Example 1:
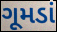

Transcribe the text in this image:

ગૂમડાં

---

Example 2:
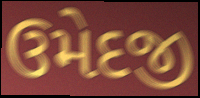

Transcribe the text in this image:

ઉમેદજી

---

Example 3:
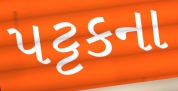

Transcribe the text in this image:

પટ્ટકના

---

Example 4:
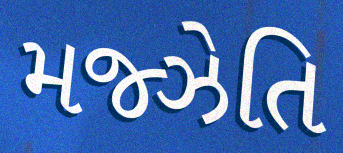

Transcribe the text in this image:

મજ્ઝેતિ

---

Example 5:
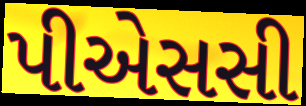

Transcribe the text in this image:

પીએસસી